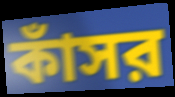
কাঁসর